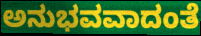
ಅನುಭವವಾದಂತೆ